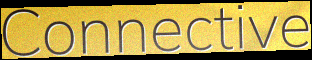
Connective